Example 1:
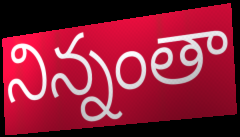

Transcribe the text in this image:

నిన్నంతా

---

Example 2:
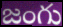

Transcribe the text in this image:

జంగు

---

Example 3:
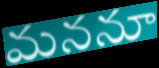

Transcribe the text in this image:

మననూ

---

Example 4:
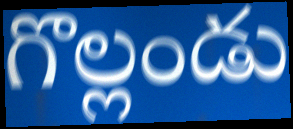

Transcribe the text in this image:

గొల్లండు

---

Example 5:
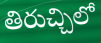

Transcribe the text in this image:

తిరుచ్చిలో